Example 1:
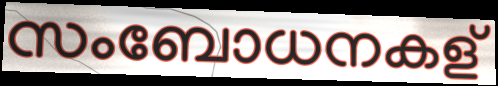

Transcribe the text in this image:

സംബോധനകള്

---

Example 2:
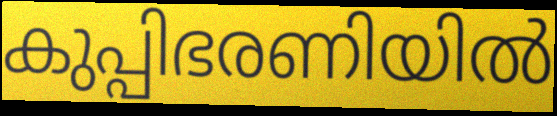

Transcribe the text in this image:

കുപ്പിഭരണിയിൽ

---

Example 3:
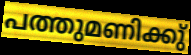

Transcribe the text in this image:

പത്തുമണിക്കു്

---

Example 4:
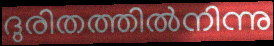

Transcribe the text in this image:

ദുരിതത്തിൽനിന്നു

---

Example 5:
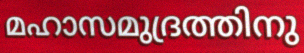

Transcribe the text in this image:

മഹാസമുദ്രത്തിനു